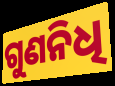
ଗୁଣନିଧି